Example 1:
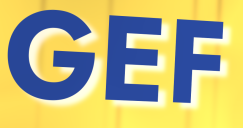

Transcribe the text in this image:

GEF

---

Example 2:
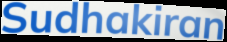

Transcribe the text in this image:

Sudhakiran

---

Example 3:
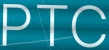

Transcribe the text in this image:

PTC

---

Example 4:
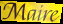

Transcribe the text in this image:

Maire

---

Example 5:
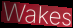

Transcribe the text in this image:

Wakes